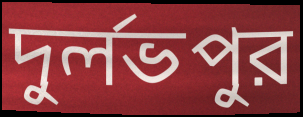
দুর্লভপুর